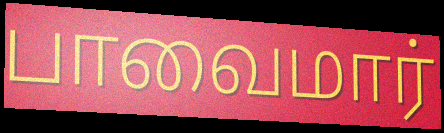
பாவைமார்